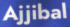
Ajjibal